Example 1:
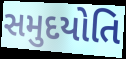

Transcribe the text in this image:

સમુદયોતિ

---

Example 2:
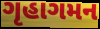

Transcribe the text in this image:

ગૃહાગમન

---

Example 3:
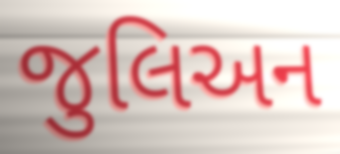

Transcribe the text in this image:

જુલિઅન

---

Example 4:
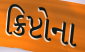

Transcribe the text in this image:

ક્રિપ્ટોના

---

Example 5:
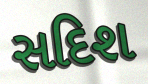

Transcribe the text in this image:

સદિશ